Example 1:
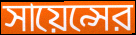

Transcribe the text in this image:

সায়েন্সের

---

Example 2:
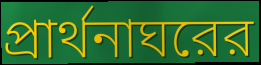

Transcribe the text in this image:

প্রার্থনাঘরের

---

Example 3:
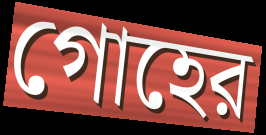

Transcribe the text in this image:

গোহের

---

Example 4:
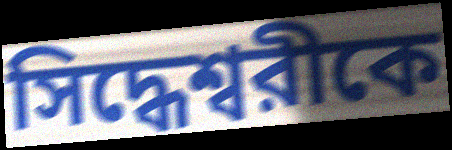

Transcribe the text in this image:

সিদ্ধেশ্বরীকে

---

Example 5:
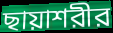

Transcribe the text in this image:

ছায়াশরীর